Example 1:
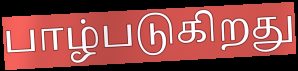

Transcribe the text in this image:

பாழ்படுகிறது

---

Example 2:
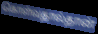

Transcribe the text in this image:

கொள்வதால்தான்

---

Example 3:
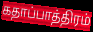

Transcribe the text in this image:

கதாப்பாத்திரம்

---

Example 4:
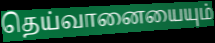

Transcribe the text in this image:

தெய்வானையையும்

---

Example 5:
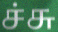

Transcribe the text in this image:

ச்சு